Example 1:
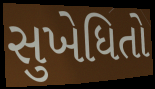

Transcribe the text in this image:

સુખેધિતો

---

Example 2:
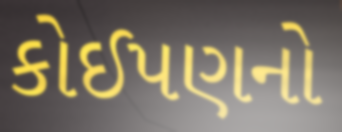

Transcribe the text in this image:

કોઈપણનો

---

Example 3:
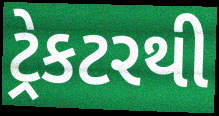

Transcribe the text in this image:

ટ્રેકટરથી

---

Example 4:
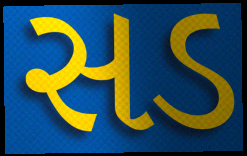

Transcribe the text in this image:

સડ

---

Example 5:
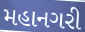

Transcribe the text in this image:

મહાનગરી